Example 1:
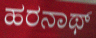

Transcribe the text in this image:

ಹರನಾಥ್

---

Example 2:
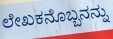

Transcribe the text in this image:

ಲೇಖಕನೊಬ್ಬನನ್ನು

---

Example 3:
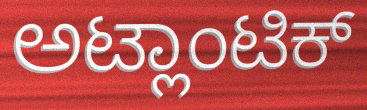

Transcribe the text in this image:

ಅಟ್ಲಾಂಟಿಕ್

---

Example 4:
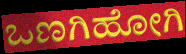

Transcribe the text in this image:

ಒಣಗಿಹೋಗಿ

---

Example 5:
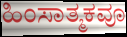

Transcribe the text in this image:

ಹಿಂಸಾತ್ಮಕವೂ